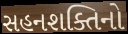
સહનશક્તિનો